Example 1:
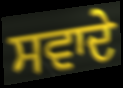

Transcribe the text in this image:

ਸਵਾਦੇ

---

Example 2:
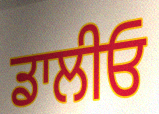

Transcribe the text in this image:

ਡਾਲੀਓ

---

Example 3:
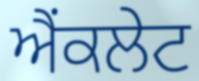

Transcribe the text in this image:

ਐਂਕਲੇਟ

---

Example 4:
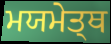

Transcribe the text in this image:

ਮਯਮੇਤ੍ਥ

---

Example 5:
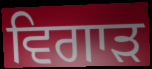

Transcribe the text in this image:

ਵਿਗਾਡ਼